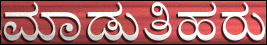
ಮಾಡುತಿಹರು